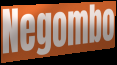
Negombo